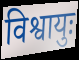
विश्वायुः